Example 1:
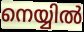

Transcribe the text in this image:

നെയ്യിൽ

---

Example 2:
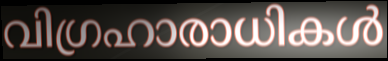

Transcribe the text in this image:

വിഗ്രഹാരാധികൾ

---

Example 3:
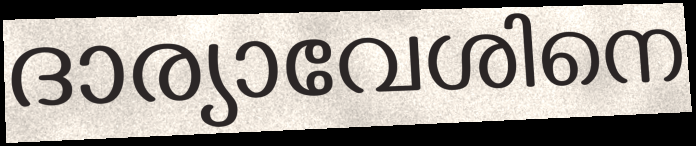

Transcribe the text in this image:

ദാര്യാവേശിനെ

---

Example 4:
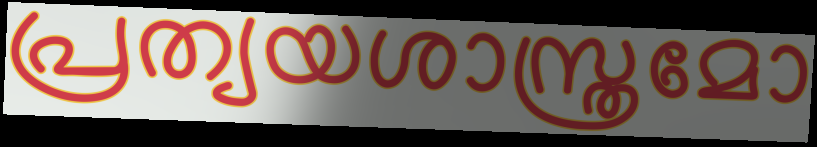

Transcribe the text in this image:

പ്രത്യയശാസ്ത്രമോ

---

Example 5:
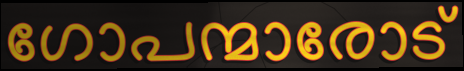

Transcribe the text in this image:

ഗോപന്മാരോട്